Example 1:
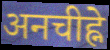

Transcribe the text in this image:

अनचीह्ने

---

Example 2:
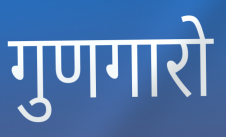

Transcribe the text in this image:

गुणगारो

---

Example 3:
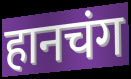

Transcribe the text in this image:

हानचंग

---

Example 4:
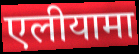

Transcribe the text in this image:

एलीयामा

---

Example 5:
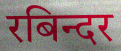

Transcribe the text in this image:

रबिन्दर